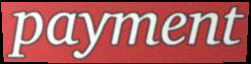
payment